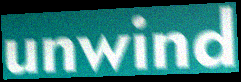
unwind